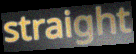
straight